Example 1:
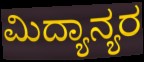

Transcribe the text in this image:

ಮಿದ್ಯಾನ್ಯರ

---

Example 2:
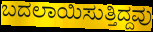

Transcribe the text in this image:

ಬದಲಾಯಿಸುತ್ತಿದ್ದವು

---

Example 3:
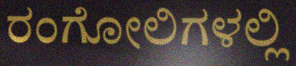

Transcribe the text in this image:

ರಂಗೋಲಿಗಳಲ್ಲಿ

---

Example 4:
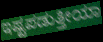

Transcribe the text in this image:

ಇಷ್ಟಪಡುತ್ತೀಯಾ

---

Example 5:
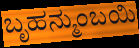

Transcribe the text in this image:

ಬೃಹನ್ಮುಂಬಯಿ